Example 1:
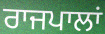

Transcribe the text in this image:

ਰਾਜਪਾਲਾਂ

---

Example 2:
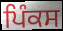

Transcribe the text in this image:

ਪਿੰਕਸ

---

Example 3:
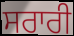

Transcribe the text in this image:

ਸਰਾਰੀ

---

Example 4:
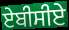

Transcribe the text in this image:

ਏਬੀਸੀਏ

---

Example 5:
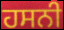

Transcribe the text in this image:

ਹਸਨੀ